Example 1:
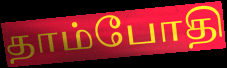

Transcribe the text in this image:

தாம்போதி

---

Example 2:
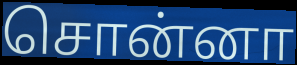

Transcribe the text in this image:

சொன்னா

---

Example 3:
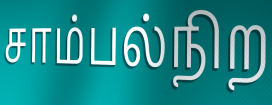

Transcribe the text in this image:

சாம்பல்நிற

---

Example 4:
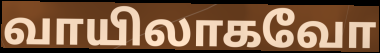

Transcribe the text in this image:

வாயிலாகவோ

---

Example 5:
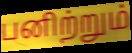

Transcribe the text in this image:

பனிற்றும்